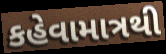
કહેવામાત્રથી